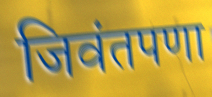
जिवंतपणा